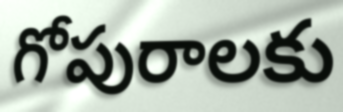
గోపురాలకు